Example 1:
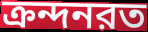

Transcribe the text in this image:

ক্রন্দনরত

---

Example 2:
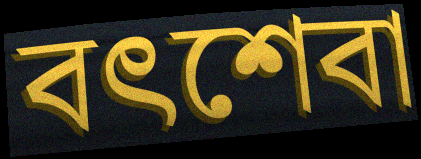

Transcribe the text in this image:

বৎশেবা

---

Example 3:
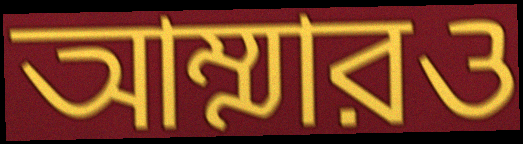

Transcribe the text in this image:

আম্মারও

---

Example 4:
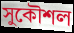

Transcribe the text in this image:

সুকৌশল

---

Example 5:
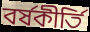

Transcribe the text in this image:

বর্ষকীর্তি